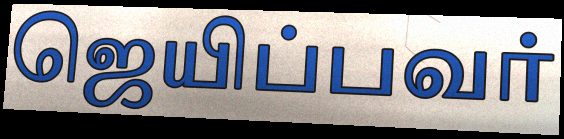
ஜெயிப்பவர்